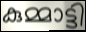
കുമ്മാട്ടി